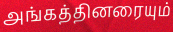
அங்கத்தினரையும்